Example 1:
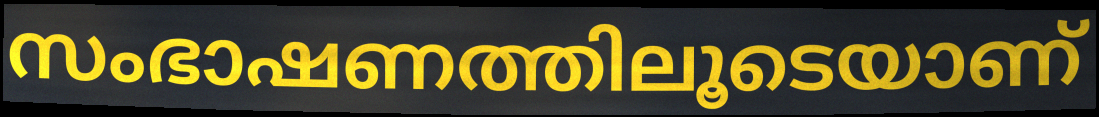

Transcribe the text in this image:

സംഭാഷണത്തിലൂടെയാണ്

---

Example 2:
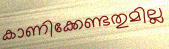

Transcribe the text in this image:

കാണിക്കേണ്ടതുമില്ല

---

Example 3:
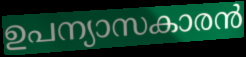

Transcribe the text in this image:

ഉപന്യാസകാരൻ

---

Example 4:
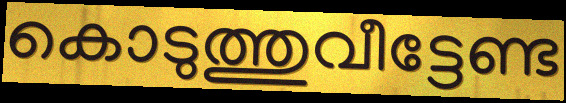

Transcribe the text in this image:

കൊടുത്തുവീട്ടേണ്ട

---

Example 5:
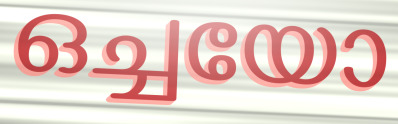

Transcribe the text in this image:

ഒച്ചയോ